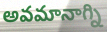
అవమానాగ్ని